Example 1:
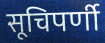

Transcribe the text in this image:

सूचिपर्णी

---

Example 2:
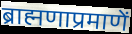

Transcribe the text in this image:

ब्राह्मणाप्रमाणें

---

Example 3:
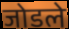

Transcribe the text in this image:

जोडले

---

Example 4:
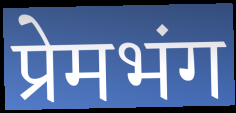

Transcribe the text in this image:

प्रेमभंग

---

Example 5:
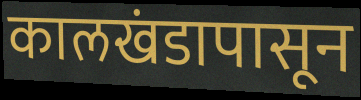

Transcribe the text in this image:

कालखंडापासून